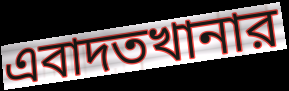
এবাদতখানার